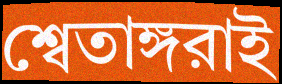
শ্বেতাঙ্গরাই